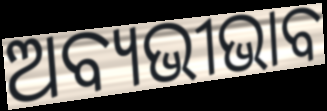
ଅବ୍ୟଭୀଭାବ